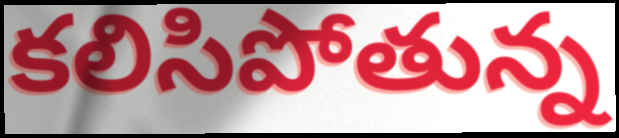
కలిసిపోతున్న